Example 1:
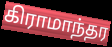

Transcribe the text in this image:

கிராமாந்தர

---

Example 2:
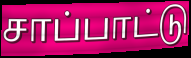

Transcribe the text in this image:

சாப்பாட்டு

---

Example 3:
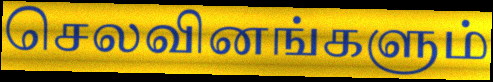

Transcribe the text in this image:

செலவினங்களும்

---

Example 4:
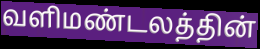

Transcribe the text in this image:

வளிமண்டலத்தின்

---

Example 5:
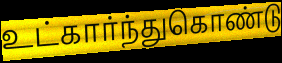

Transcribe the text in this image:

உட்கார்ந்துகொண்டு